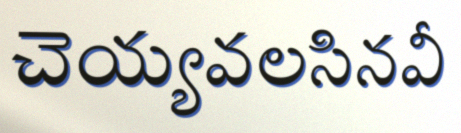
చెయ్యవలసినవీ